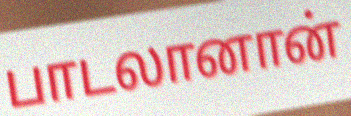
பாடலானான்